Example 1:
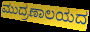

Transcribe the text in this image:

ಮುದ್ರಣಾಲಯದ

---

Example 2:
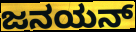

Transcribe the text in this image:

ಜನಯನ್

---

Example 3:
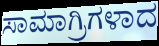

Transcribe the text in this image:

ಸಾಮಾಗ್ರಿಗಳಾದ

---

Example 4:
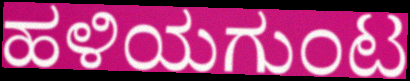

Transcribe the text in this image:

ಹಳಿಯಗುಂಟ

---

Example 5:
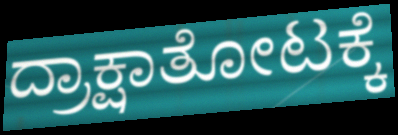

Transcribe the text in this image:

ದ್ರಾಕ್ಷಾತೋಟಕ್ಕೆ